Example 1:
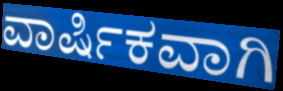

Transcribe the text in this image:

ವಾರ್ಷಿಕವಾಗಿ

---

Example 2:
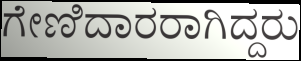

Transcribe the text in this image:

ಗೇಣಿದಾರರಾಗಿದ್ದರು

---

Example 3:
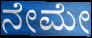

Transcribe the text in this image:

ನೇಮೇ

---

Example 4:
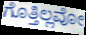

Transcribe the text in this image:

ಗೊತ್ತಿಲ್ಲವೋ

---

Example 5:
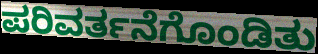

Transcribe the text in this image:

ಪರಿವರ್ತನೆಗೊಂಡಿತು